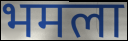
भमला